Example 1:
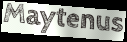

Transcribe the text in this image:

Maytenus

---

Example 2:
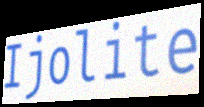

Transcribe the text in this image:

Ijolite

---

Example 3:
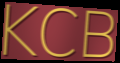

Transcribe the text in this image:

KCB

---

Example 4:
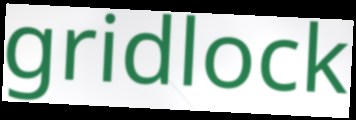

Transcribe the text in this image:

gridlock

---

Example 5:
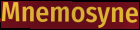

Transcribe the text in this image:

Mnemosyne